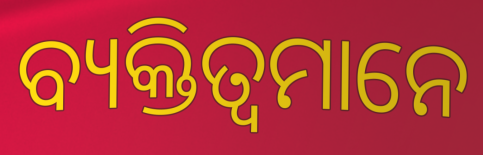
ବ୍ୟକ୍ତିତ୍ୱମାନେ